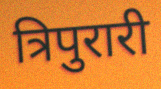
त्रिपुरारी